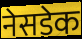
नेसडेक